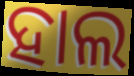
ହାଲ